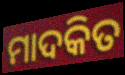
ମାଦକିତ